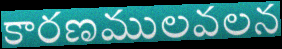
కారణములవలన